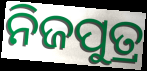
ନିଜପୁତ୍ର